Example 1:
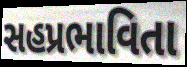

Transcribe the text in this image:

સહપ્રભાવિતા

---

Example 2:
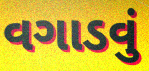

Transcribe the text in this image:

વગાડવું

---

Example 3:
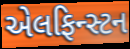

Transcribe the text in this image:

એલફિન્સ્ટન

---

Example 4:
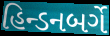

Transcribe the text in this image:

હિન્ડનબર્ગે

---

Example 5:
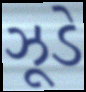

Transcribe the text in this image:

ઝૂડે